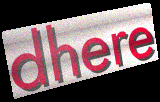
dhere